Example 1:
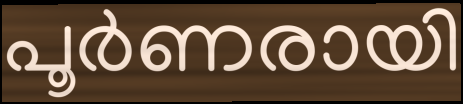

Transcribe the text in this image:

പൂർണരായി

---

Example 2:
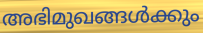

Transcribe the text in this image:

അഭിമുഖങ്ങൾക്കും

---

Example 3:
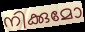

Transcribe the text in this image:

നിക്കുമോ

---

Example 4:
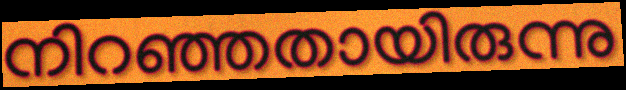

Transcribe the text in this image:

നിറഞ്ഞതായിരുന്നു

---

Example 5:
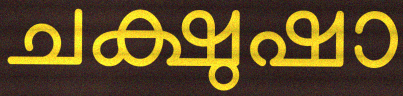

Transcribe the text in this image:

ചക്ഷുഷാ